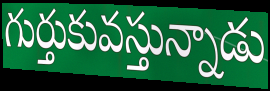
గుర్తుకువస్తున్నాడు